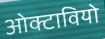
ओक्टावियो